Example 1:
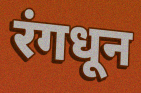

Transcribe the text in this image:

रंगधून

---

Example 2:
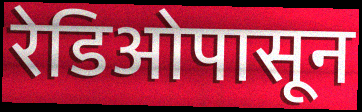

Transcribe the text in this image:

रेडिओपासून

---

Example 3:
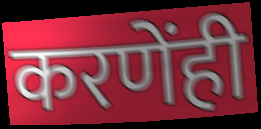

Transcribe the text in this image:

करणेंही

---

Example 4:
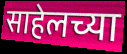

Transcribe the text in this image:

साहेलच्या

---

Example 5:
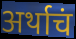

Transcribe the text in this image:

अर्थाचं